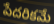
పేదరికమే